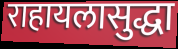
राहायलासुद्धा